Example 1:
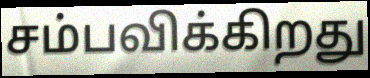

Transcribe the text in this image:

சம்பவிக்கிறது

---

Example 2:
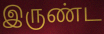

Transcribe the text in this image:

இருண்ட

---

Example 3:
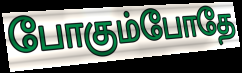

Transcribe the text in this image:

போகும்போதே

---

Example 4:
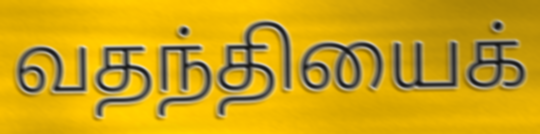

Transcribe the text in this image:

வதந்தியைக்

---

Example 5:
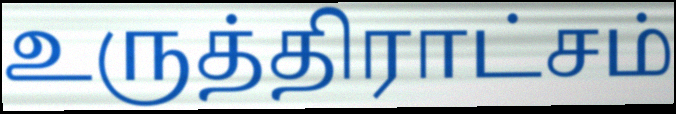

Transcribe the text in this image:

உருத்திராட்சம்